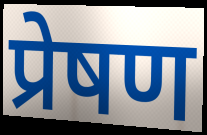
प्रेषण